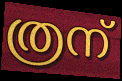
ത്രന്